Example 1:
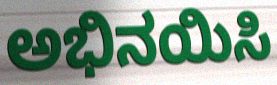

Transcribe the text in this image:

ಅಭಿನಯಿಸಿ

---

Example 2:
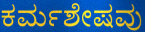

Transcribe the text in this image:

ಕರ್ಮಶೇಷವು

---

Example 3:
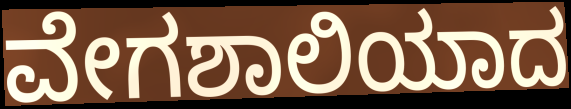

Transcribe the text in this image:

ವೇಗಶಾಲಿಯಾದ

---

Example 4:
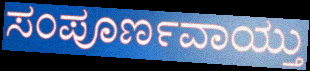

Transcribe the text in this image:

ಸಂಪೂರ್ಣವಾಯ್ತು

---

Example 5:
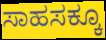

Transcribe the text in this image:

ಸಾಹಸಕ್ಕೂ